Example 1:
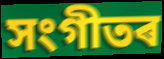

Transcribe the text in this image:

সংগীতৰ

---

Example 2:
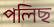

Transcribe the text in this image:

পলিছ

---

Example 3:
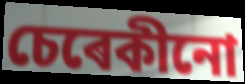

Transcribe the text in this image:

চেৰেকীনো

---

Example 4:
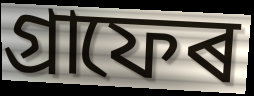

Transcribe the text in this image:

গ্ৰাফেৰ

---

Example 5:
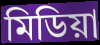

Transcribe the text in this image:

মিডিয়া